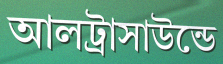
আলট্রাসাউন্ডে